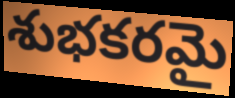
శుభకరమై